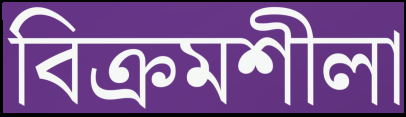
বিক্রমশীলা